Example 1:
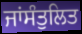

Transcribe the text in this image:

ਜਾਂਸੰਤੁਲਿਤ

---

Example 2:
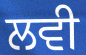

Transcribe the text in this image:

ਲਵੀ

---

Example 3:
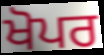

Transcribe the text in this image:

ਖੋਪਰ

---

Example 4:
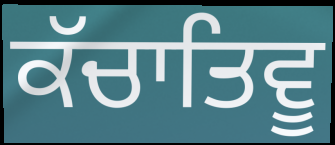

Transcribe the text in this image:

ਕੱਚਾਤਿਵੂ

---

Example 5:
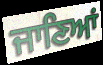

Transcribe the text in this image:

ਜਾਣਿਆਂ